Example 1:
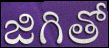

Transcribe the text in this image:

జిగితో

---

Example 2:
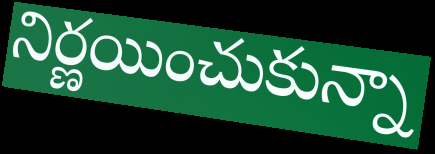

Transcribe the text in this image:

నిర్ణయించుకున్నా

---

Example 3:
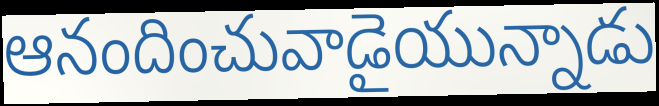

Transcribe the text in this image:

ఆనందించువాడైయున్నాడు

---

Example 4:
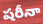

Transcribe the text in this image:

షరీనా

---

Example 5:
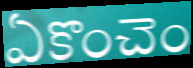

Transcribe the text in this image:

ఏకొంచెం